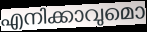
എനിക്കാവുമൊ